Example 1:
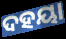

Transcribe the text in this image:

ଦହୟା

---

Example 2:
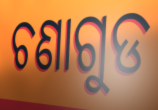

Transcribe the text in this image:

ଚଣାଗୁଡ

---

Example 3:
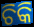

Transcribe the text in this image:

ଚିକି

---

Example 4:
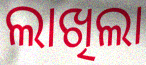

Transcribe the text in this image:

ଲାଖିଲା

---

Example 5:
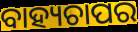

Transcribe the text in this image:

ବାହ୍ୟଚାପର